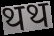
थथ